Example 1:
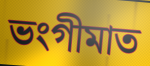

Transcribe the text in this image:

ভংগীমাত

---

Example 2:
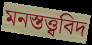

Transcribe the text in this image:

মনস্তত্ত্ববিদ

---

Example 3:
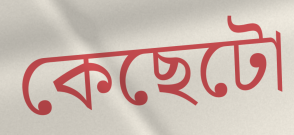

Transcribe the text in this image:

কেছেটো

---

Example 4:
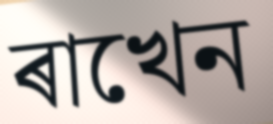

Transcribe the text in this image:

ৰাখেন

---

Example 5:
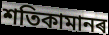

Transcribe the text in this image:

শতিকামানৰ